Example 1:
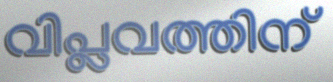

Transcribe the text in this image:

വിപ്ലവത്തിന്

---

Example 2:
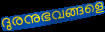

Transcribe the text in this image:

ദുരനുഭവങ്ങളെ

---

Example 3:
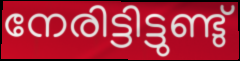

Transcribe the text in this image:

നേരിട്ടിട്ടുണ്ടു്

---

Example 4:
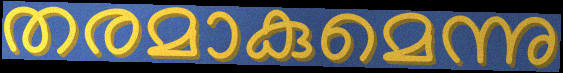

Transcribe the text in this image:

തരമാകുമെന്നു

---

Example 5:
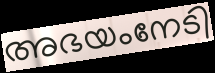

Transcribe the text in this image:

അഭയംനേടി